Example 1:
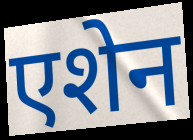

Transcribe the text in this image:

एशेन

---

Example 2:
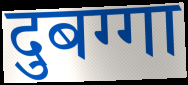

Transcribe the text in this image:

दुबग्गा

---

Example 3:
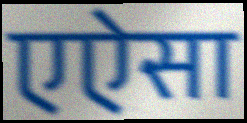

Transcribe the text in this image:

एऐसा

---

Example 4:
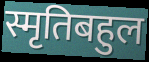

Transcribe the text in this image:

स्मृतिबहुल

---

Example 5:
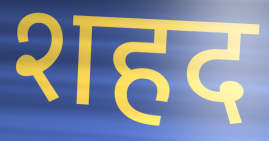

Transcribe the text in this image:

शहद